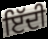
ਇੱਦੀ